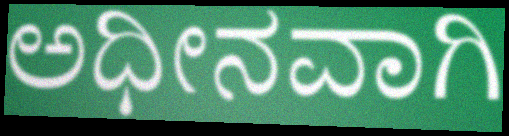
ಅಧೀನವಾಗಿ